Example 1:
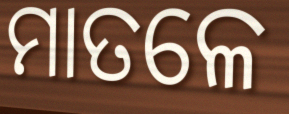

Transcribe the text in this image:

ମାତଳେ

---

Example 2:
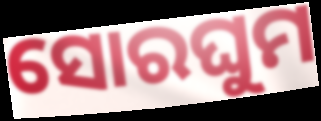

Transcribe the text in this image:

ସୋରଘୁମ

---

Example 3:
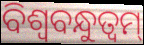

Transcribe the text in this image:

ବିଶ୍ଵବନ୍ଧୁତ୍ଵମ୍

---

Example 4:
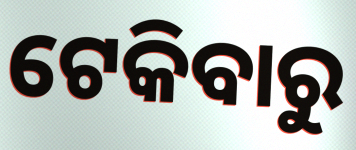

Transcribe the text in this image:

ଟେକିବାରୁ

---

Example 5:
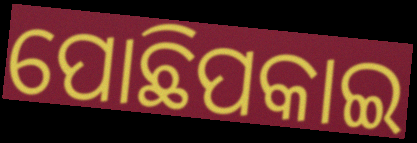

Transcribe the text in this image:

ପୋଛିପକାଇ